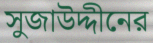
সুজাউদ্দীনের